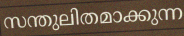
സന്തുലിതമാക്കുന്ന